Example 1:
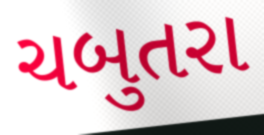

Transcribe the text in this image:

ચબુતરા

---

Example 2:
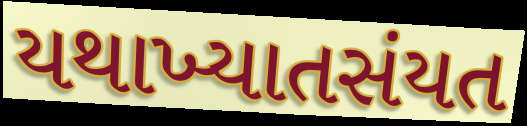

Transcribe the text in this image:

યથાખ્યાતસંયત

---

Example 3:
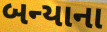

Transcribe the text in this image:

બન્યાના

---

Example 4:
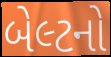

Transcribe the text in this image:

બેલ્ટનો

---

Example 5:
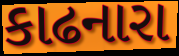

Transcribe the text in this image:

કાઢનારા